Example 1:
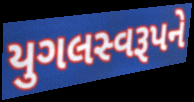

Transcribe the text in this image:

યુગલસ્વરૂપને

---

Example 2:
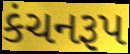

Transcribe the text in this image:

કંચનરૂપ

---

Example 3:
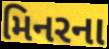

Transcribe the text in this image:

મિનરના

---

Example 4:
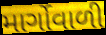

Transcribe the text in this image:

માર્ગોવાળી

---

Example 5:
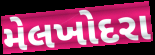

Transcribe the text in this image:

મેલખોદરા